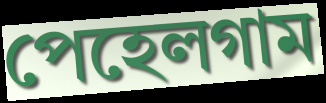
পেহেলগাম